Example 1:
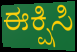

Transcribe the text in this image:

ಈಕ್ಷಿಸಿ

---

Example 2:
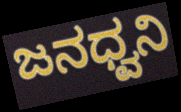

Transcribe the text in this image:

ಜನಧ್ವನಿ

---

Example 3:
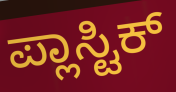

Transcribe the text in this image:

ಪ್ಲಾಸ್ಟಿಕ್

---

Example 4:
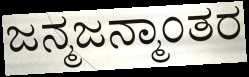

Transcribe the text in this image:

ಜನ್ಮಜನ್ಮಾಂತರ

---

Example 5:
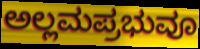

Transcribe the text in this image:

ಅಲ್ಲಮಪ್ರಭುವೂ